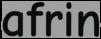
afrin